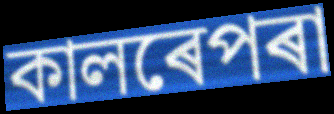
কালৰেপৰা